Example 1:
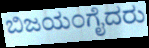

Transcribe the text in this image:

ಬಿಜಯಂಗೈದರು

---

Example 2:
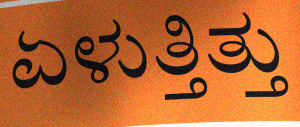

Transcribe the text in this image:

ಏಳುತ್ತಿತ್ತು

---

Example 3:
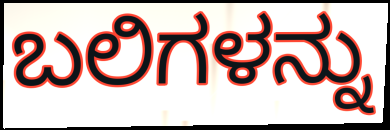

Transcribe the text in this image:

ಬಲಿಗಳನ್ನು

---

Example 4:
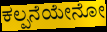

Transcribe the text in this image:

ಕಲ್ಪನೆಯೇನೋ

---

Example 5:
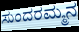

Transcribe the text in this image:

ಸುಂದರಮ್ಮನ